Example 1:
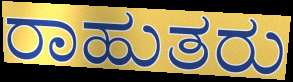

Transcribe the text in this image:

ರಾಹುತರು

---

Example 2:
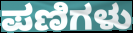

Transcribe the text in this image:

ಪಣಿಗಳು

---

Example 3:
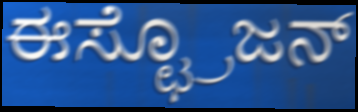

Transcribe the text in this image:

ಈಸ್ಟ್ರೊಜನ್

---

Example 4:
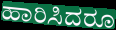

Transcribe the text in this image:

ಹಾರಿಸಿದರೂ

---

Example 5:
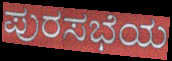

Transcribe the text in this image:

ಪುರಸಭೆಯ